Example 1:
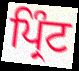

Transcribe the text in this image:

ਪ੍ਰਿੰਟ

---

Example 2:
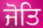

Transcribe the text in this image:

ਜੋਤਿ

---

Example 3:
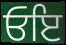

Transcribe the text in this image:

ਓਇ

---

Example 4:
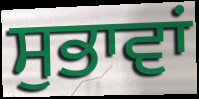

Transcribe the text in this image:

ਸੁਭਾਵਾਂ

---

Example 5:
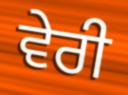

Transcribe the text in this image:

ਵੇਰੀ